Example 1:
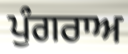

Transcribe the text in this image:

ਪੁੰਗਰਾਅ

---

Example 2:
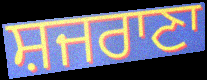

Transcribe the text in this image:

ਸ਼ਜਰਾਣਾ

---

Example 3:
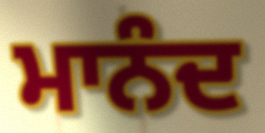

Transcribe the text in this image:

ਮਾਨੰਦ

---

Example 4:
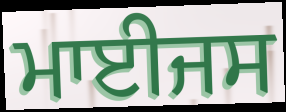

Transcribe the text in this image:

ਮਾਈਜਸ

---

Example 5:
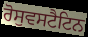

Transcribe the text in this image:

ਰੋਸੁਵਸਟੈਟਿਨ